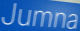
Jumna